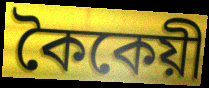
কৈকেয়ী